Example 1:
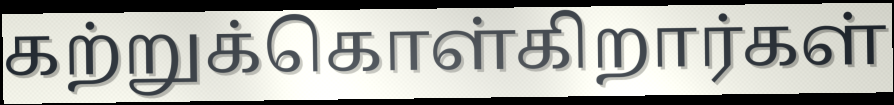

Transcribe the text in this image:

கற்றுக்கொள்கிறார்கள்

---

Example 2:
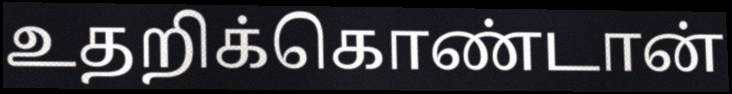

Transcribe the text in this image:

உதறிக்கொண்டான்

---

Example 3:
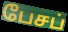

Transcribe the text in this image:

பேசப்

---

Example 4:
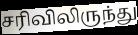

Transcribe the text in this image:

சரிவிலிருந்து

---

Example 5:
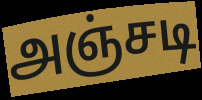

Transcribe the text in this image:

அஞ்சடி